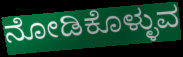
ನೋಡಿಕೊಳ್ಳುವ